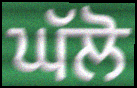
ਘੱਲੋ